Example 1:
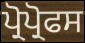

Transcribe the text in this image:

ਪ੍ਰੋਪ੍ਰੋਫਸ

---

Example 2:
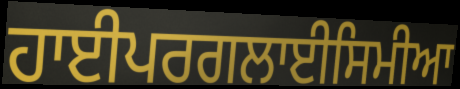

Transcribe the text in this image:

ਹਾਈਪਰਗਲਾਈਸਿਮੀਆ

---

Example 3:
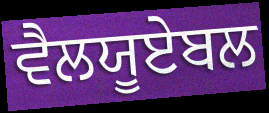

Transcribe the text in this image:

ਵੈਲਯੂਏਬਲ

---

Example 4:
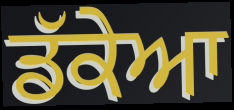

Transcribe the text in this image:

ਡੱਕੇਆ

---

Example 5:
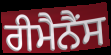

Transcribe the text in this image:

ਰੀਮੈਨੈਂਸ